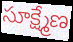
సూక్ష్మేణ